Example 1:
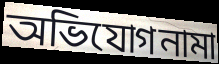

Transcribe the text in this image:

অভিযোগনামা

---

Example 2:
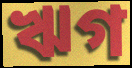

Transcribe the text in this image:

ঋগ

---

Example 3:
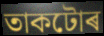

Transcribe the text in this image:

তাকটোৰ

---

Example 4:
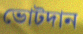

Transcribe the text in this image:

ভোটদান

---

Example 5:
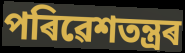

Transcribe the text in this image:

পৰিৱেশতন্ত্ৰৰ